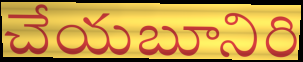
చేయబూనిరి